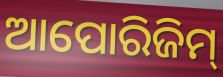
ଆପୋରିଜିମ୍